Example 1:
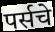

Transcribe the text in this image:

पर्सचे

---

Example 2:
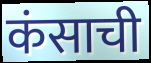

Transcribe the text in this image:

कंसाची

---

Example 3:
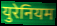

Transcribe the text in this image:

युरेनियम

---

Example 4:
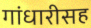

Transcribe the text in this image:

गांधारीसह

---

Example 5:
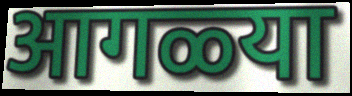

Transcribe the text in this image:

आगळ्या